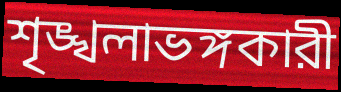
শৃঙ্খলাভঙ্গকারী